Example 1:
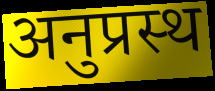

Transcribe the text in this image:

अनुप्रस्थ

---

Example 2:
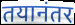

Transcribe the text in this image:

तयानंतर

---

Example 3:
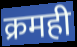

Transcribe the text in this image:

क्रमही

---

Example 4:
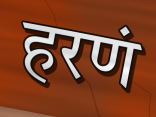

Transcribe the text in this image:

हरणं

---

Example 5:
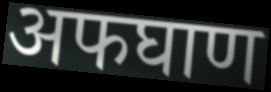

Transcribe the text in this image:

अफघाण